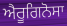
ਐਰੂਗਿਨੋਸਾ